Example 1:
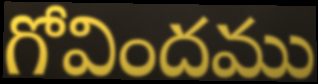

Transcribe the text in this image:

గోవిందము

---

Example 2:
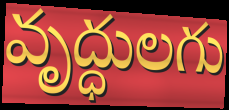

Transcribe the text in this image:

వృద్ధులగు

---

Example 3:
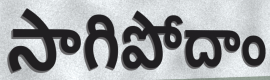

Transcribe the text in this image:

సాగిపోదాం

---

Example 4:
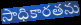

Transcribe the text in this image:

సాధికారతను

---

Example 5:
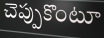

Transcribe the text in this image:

చెప్పుకొంటూ